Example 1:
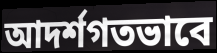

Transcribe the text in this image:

আদর্শগতভাবে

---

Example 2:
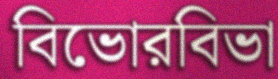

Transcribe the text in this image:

বিভোরবিভা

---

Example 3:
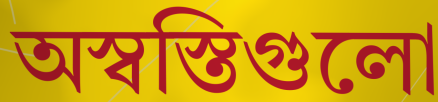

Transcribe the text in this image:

অস্বস্তিগুলো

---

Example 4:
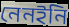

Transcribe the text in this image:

নেনইনি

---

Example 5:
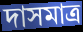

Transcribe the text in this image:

দাসমাত্র